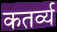
कतर्व्य